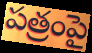
పత్రంపై